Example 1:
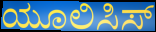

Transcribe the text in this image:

ಯೂಲಿಸಿಸ್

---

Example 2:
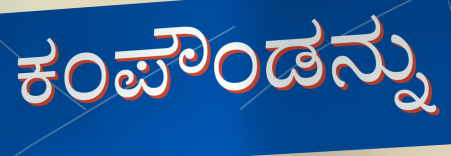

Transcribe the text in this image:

ಕಂಪೌಂಡನ್ನು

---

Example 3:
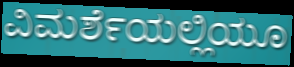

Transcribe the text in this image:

ವಿಮರ್ಶೆಯಲ್ಲಿಯೂ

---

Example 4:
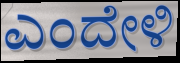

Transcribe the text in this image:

ಎಂದೇಳಿ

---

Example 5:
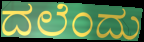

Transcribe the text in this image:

ದಲೆಂದು